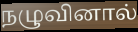
நழுவினால்